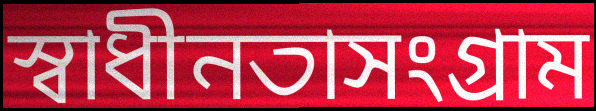
স্বাধীনতাসংগ্রাম